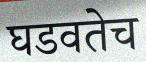
घडवतेच